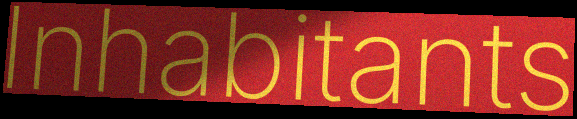
Inhabitants